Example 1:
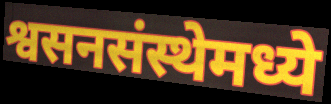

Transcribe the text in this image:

श्वसनसंस्थेमध्ये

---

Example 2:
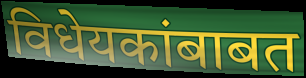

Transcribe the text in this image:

विधेयकांबाबत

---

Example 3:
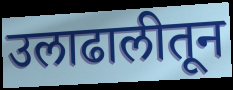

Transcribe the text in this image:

उलाढालीतून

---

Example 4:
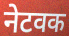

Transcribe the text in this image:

नेटवक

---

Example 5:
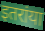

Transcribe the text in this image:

इतरांया